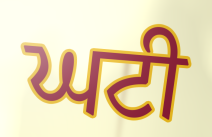
ਘਟੀ